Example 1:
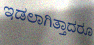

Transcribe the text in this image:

ಇಡಲಾಗಿತ್ತಾದರೂ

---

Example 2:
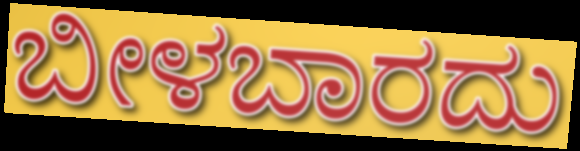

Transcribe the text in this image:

ಬೀಳಬಾರದು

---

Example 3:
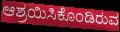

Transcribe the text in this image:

ಆಶ್ರಯಿಸಿಕೊಂಡಿರುವ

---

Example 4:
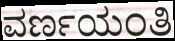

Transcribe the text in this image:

ವರ್ಣಯಂತಿ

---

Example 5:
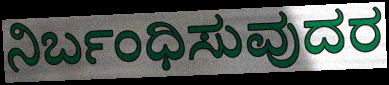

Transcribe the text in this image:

ನಿರ್ಬಂಧಿಸುವುದರ